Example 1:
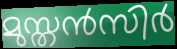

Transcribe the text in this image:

മുസ്തൻസിർ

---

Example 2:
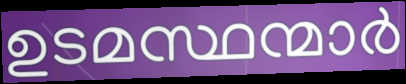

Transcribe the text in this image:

ഉടമസ്ഥന്മാർ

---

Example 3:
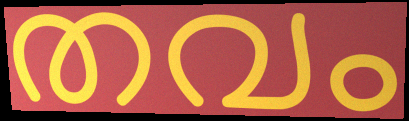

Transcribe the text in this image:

തവം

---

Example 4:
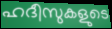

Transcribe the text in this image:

ഹദീസുകളുടെ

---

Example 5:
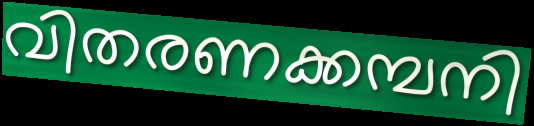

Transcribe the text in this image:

വിതരണക്കമ്പനി